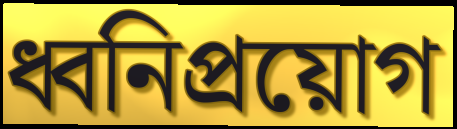
ধ্বনিপ্রয়োগ